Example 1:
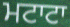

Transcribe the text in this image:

ਮਟਾਟਾ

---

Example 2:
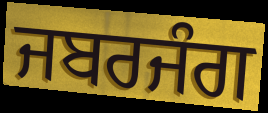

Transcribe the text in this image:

ਜਬਰਜੰਗ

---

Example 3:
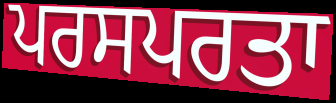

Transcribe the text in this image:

ਪਰਸਪਰਤਾ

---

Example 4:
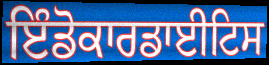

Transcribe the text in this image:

ਇੰਡੋਕਾਰਡਾਈਟਿਸ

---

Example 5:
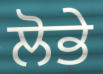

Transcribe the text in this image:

ਲੋਭੇ